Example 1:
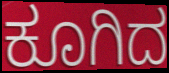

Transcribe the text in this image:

ಕೂಗಿದ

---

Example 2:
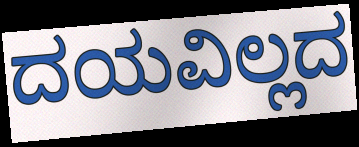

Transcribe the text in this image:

ದಯವಿಲ್ಲದ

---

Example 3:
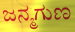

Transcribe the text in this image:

ಜನ್ಮಗುಣ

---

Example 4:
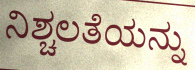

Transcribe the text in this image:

ನಿಶ್ಚಲತೆಯನ್ನು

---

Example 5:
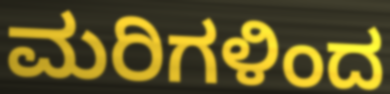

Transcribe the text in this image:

ಮರಿಗಳಿಂದ